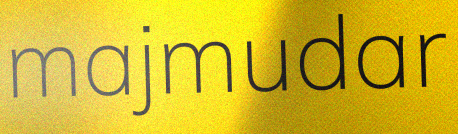
majmudar